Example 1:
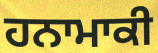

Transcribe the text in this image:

ਹਨਾਮਾਕੀ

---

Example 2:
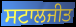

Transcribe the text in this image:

ਸਟਾਲਜੀਤ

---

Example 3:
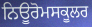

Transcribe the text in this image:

ਨਿਊਰੋਮਸਕੂਲਰ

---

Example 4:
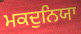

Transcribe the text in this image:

ਮਕਦੁਨਿਯਾ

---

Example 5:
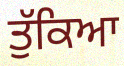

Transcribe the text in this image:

ਤੁੱਕਿਆ